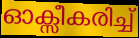
ഓക്സീകരിച്ച്